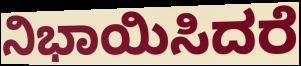
ನಿಭಾಯಿಸಿದರೆ